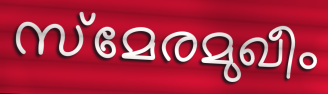
സ്മേരമുഖീം